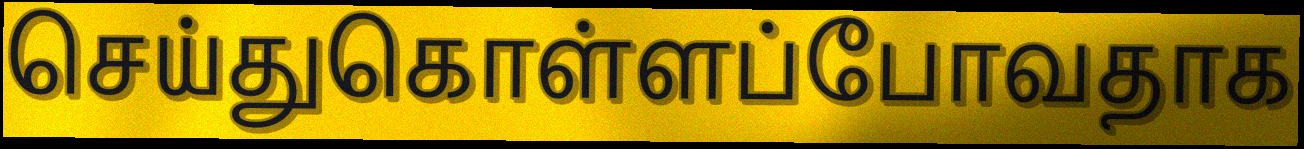
செய்துகொள்ளப்போவதாக